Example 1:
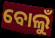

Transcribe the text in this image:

ବୋଲୁଁ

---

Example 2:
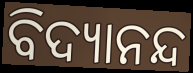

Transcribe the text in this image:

ବିଦ୍ୟାନନ୍ଦ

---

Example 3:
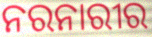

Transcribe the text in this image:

ନରନାରୀର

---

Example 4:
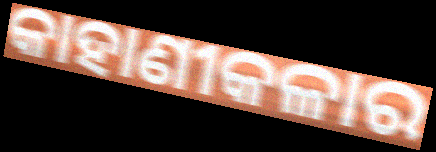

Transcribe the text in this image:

କାହାଣୀକଳାର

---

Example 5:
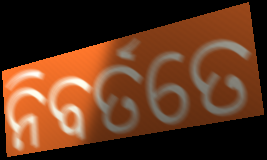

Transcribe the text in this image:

ନିବର୍ତତେ